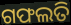
ଗଫଲତି